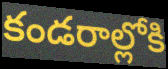
కండరాల్లోకి